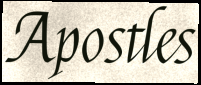
Apostles